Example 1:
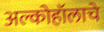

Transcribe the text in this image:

अल्कोहॉलाचे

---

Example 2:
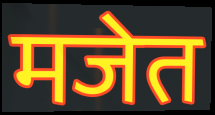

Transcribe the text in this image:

मजेत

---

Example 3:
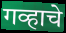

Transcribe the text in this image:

गव्हाचे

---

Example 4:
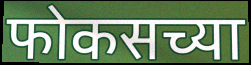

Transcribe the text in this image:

फोकसच्या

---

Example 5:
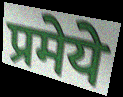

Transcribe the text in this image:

प्रमेये